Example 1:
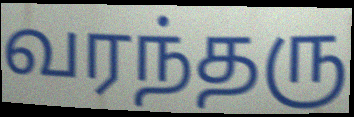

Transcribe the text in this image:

வரந்தரு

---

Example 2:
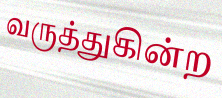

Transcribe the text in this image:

வருத்துகின்ற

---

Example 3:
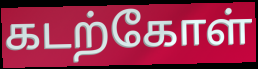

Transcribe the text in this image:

கடற்கோள்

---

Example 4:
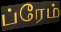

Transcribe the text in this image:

ப்ரேம்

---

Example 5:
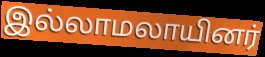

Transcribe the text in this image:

இல்லாமலாயினர்